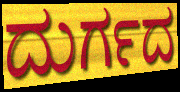
ದುರ್ಗದ